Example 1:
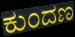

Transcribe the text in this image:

ಕುಂದಣ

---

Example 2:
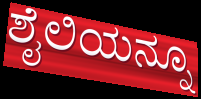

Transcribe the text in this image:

ಶೈಲಿಯನ್ನೂ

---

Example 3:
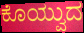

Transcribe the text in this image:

ಕೊಯ್ವುದ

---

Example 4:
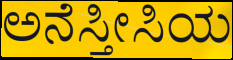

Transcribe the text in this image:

ಅನೆಸ್ತೀಸಿಯ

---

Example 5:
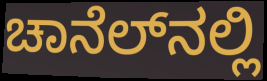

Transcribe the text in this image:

ಚಾನೆಲ್‌ನಲ್ಲಿ